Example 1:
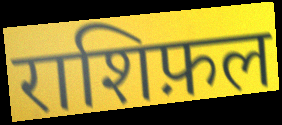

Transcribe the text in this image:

राशिफ़ल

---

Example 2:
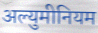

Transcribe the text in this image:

अल्युमीनियम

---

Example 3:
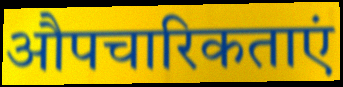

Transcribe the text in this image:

औपचारिकताएं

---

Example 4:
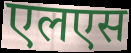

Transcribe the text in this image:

एलएस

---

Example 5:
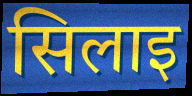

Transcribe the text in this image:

सिलाइ